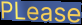
PLease